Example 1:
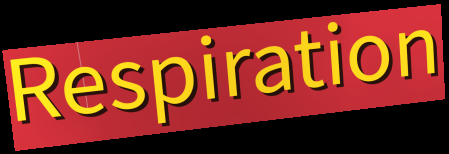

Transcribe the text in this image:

Respiration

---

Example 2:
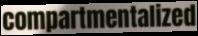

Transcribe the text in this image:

compartmentalized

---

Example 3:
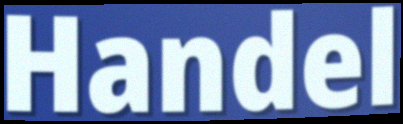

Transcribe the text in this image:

Handel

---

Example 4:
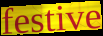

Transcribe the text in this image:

festive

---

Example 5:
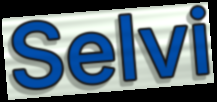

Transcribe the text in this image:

Selvi